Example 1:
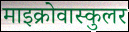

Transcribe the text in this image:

माइक्रोवास्कुलर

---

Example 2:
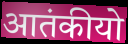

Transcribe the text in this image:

आतंकीयो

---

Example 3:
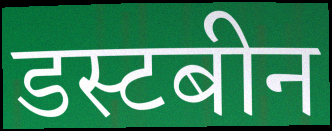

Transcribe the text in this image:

डस्टबीन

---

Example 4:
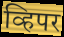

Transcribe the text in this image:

व्हिपर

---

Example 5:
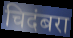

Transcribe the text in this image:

चिदंबरा